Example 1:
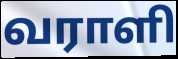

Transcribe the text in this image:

வராளி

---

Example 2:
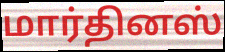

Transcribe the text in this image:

மார்தினஸ்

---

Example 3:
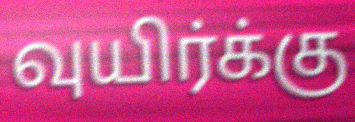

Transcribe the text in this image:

வுயிர்க்கு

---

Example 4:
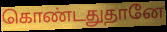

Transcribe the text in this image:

கொண்டதுதானே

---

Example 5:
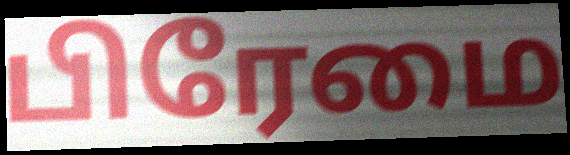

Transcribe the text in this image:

பிரேமை